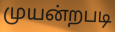
முயன்றபடி